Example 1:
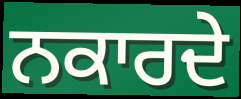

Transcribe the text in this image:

ਨਕਾਰਦੇ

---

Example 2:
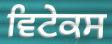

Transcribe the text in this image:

ਵਿਟੇਕਸ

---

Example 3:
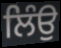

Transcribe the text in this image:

ਲਿੰਉ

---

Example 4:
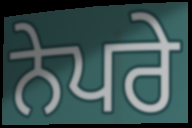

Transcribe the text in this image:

ਨੇਪਰੇ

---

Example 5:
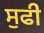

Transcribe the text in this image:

ਸੁਫੀ